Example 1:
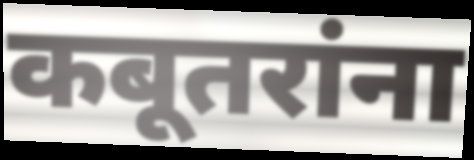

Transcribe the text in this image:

कबूतरांना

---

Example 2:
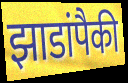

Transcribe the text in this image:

झाडांपैकी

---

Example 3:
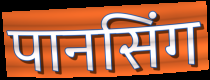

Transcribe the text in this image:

पानसिंग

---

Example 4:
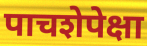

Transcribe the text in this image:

पाचशेपेक्षा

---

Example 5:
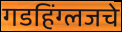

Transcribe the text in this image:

गडहिंग्लजचे